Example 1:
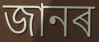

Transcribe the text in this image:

জানৰ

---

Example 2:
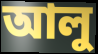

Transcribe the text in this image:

আলু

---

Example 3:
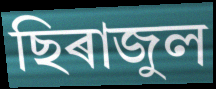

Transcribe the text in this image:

ছিৰাজুল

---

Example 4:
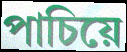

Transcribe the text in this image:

পাচিয়ে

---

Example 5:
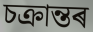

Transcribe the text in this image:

চক্ৰান্তৰ